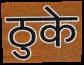
ठुके